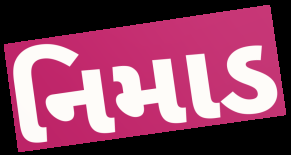
નિમાડ